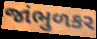
જાંભુળકર